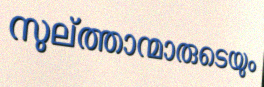
സുല്ത്താന്മാരുടെയും